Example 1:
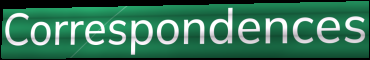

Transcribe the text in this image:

Correspondences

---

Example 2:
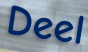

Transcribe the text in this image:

Deel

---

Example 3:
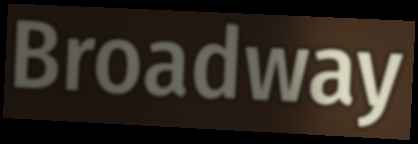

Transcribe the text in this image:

Broadway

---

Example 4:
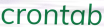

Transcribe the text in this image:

crontab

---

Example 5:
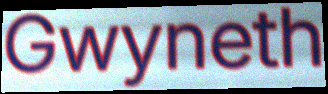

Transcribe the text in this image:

Gwyneth